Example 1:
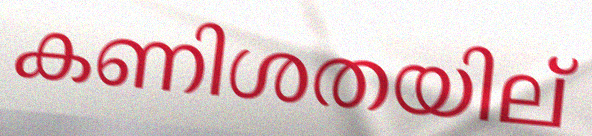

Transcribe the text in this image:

കണിശതയില്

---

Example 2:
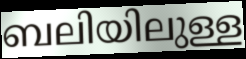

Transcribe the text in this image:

ബലിയിലുള്ള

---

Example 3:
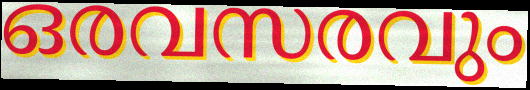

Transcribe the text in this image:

ഒരവസരവും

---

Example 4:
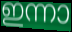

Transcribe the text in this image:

ഇന്നാ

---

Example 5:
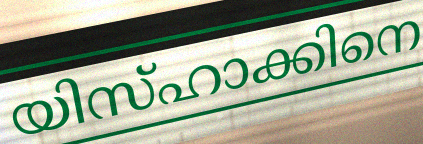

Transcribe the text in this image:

യിസ്ഹാക്കിനെ